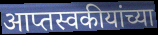
आप्तस्वकीयांच्या